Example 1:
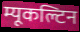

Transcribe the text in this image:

म्यूकल्टिन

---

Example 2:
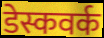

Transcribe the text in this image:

डेस्कवर्क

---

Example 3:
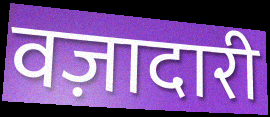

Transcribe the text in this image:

वज़ादारी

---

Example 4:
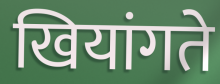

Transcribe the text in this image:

खियांगते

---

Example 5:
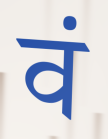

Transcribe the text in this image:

वं